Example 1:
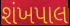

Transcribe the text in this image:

શંખપાલ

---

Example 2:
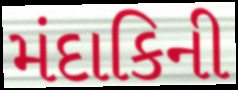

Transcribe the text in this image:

મંદાકિની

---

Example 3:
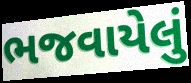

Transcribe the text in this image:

ભજવાયેલું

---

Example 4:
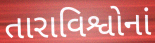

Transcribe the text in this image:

તારાવિશ્વોનાં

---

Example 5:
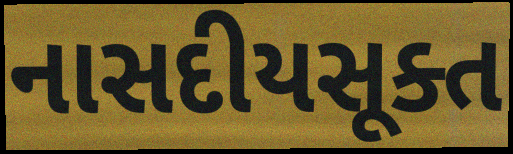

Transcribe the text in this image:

નાસદીયસૂક્ત